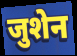
जुशेन